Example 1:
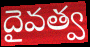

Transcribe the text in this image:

దైవత్వ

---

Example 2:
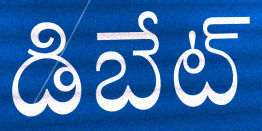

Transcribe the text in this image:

డిబేట్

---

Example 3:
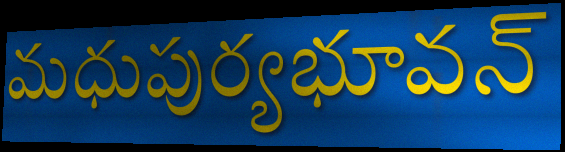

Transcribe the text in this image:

మధుపుర్యభూవన్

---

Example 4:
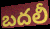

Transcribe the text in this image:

బదలీ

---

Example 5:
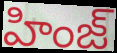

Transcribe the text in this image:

హింజ్